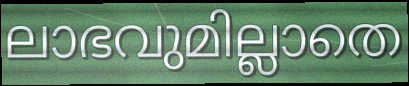
ലാഭവുമില്ലാതെ